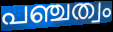
പഞ്ചത്വം